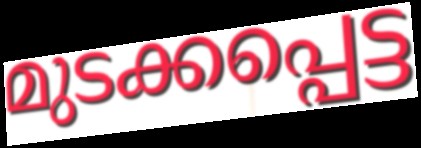
മുടക്കപ്പെട്ട